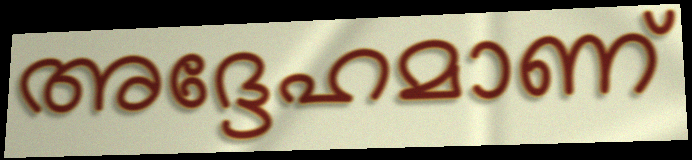
അദ്ദേഹമാണ്